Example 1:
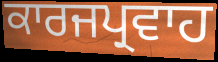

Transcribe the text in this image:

ਕਾਰਜਪ੍ਰਵਾਹ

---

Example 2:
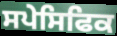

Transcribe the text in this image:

ਸਪੇਸਿਫਿਕ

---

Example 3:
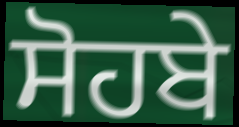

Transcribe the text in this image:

ਸੋਹਬੇ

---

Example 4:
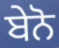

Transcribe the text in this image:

ਬੇਨੋ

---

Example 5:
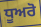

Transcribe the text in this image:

ਧੂਅਰੋ